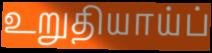
உறுதியாய்ப்